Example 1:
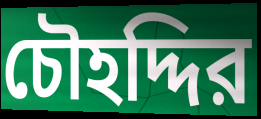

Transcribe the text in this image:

চৌহদ্দির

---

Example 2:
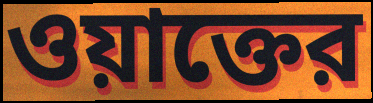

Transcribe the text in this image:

ওয়াক্তের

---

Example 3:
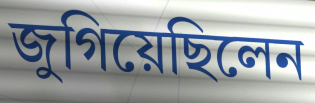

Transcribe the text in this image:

জুগিয়েছিলেন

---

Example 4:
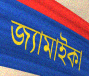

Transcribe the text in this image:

জ্যামাইকা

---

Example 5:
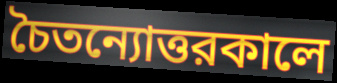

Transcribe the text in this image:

চৈতন্যোত্তরকালে